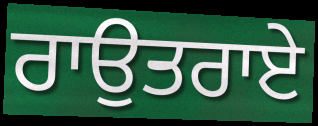
ਰਾਉਤਰਾਏ